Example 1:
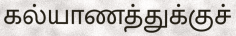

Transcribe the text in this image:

கல்யாணத்துக்குச்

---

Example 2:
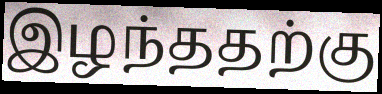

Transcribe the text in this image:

இழந்ததற்கு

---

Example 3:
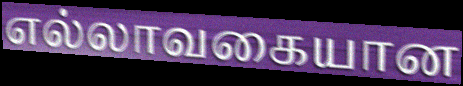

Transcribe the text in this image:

எல்லாவகையான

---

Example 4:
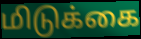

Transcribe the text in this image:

மிடுக்கை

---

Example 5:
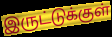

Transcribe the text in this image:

இருட்டுக்குள்